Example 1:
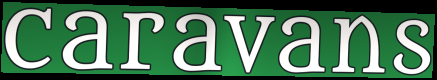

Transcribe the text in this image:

caravans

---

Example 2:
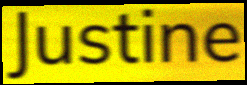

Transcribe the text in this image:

Justine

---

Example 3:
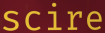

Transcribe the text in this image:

scire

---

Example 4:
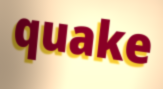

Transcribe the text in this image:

quake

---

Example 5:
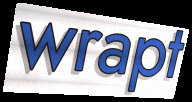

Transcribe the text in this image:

wrapt